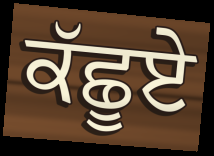
ਕੱਛੂਏ